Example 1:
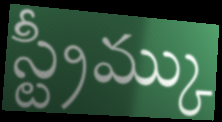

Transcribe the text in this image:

స్ట్రీమ్కు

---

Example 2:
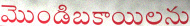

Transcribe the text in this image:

మొండిబకాయిలను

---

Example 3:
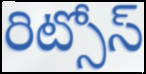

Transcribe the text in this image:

రిట్సోస్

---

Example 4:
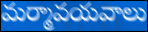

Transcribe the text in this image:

మర్మావయవాలు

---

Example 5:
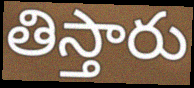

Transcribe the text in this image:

తిస్తారు